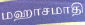
மஹாசமாதி